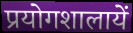
प्रयोगशालायें